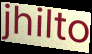
jhilto